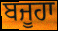
ਬਜੂਹਾ